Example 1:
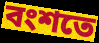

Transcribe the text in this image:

বংশতে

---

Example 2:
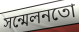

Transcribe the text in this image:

সন্মেলনতো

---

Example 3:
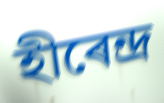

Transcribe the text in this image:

হীৰেন্দ্ৰ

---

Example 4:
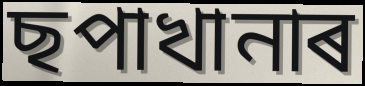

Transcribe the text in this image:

ছপাখানাৰ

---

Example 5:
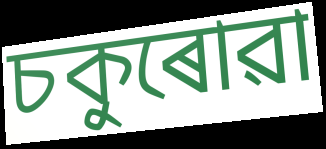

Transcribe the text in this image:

চকুৰোৱা